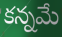
కన్నమే